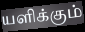
யளிக்கும்